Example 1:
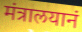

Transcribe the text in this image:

मंत्रालयानं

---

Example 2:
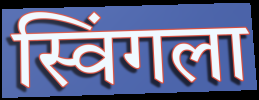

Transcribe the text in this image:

स्विंगला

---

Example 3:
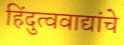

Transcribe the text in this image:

हिंदुत्ववाद्यांचे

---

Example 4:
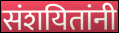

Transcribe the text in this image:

संशयितांनी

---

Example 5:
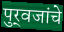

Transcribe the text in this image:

पुर्वजांचे